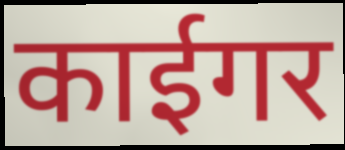
काईगर